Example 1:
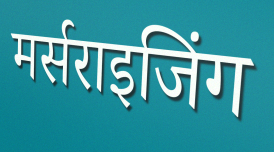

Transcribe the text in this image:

मर्सराइजिंग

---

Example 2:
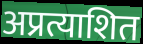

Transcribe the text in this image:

अप्रत्याशित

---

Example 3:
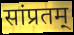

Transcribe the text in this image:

सांप्रतम्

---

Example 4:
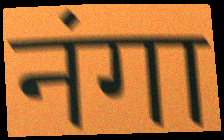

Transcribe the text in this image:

नंगा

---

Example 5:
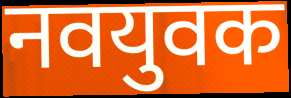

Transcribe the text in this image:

नवयुवक